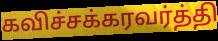
கவிச்சக்கரவர்த்தி